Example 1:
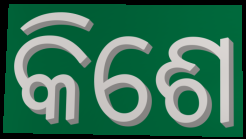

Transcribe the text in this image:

କିଶେ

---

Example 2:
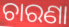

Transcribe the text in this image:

ଚାରଣା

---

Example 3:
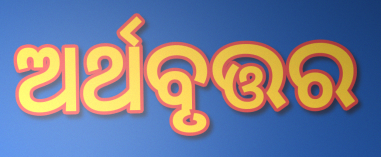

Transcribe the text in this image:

ଅର୍ଥବୃତ୍ତର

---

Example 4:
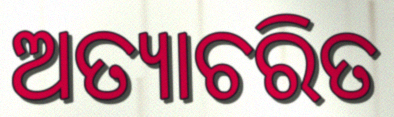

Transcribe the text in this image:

ଅତ୍ୟାଚରିତ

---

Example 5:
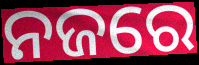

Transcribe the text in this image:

ନଜରେ